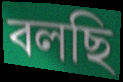
বলছি